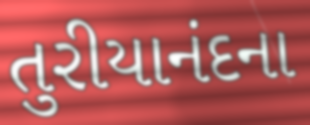
તુરીયાનંદના